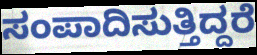
ಸಂಪಾದಿಸುತ್ತಿದ್ದರೆ